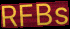
RFBs